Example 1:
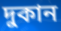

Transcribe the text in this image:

দুকান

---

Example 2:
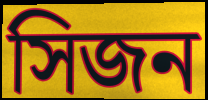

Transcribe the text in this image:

সিজন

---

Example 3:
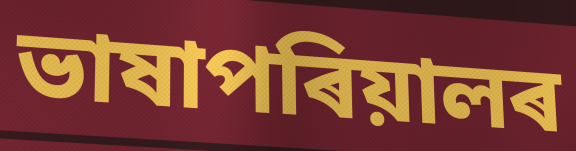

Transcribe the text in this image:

ভাষাপৰিয়ালৰ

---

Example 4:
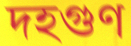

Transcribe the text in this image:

দহগুণ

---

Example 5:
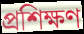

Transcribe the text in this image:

প্ৰশিক্ষণ